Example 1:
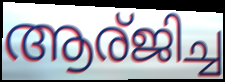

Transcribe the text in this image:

ആര്ജിച്ച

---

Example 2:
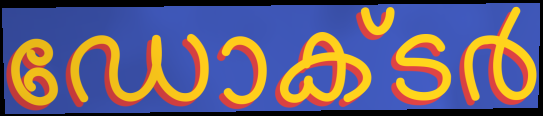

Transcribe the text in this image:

ഡോക്ടർ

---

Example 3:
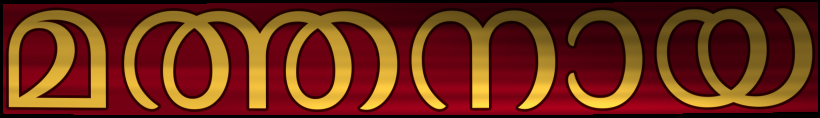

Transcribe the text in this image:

മത്തനായ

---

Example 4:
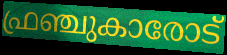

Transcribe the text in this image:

ഫ്രഞ്ചുകാരോട്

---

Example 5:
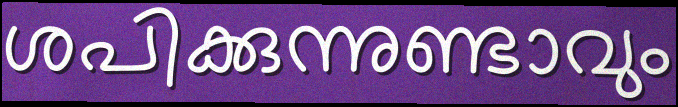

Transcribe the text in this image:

ശപിക്കുന്നുണ്ടാവും